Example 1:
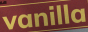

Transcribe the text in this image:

vanilla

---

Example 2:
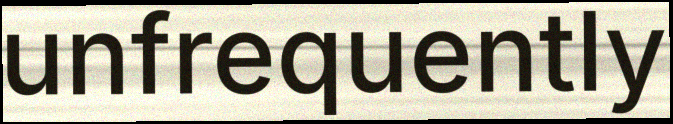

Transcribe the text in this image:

unfrequently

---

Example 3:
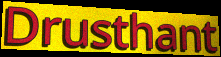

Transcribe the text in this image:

Drusthant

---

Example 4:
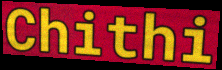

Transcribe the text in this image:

Chithi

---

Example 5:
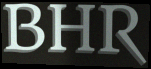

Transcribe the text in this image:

BHR